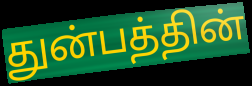
துன்பத்தின்